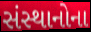
સંસ્થાનોના